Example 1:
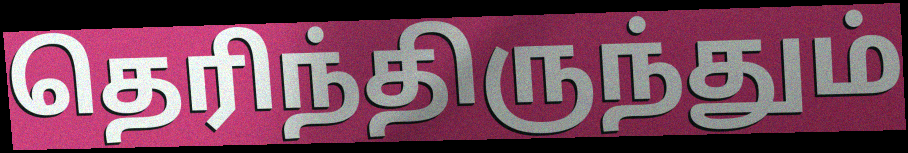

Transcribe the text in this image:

தெரிந்திருந்தும்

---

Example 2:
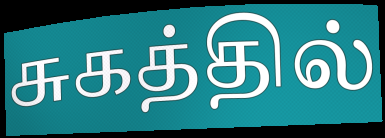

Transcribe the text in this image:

சுகத்தில்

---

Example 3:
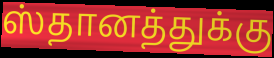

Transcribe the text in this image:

ஸ்தானத்துக்கு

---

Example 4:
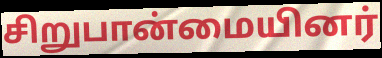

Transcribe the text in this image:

சிறுபான்மையினர்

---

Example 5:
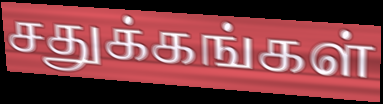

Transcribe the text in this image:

சதுக்கங்கள்